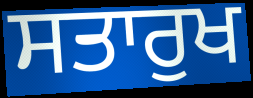
ਸਤਾਰੁਖ